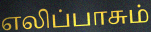
எலிப்பாசும்